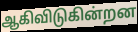
ஆகிவிடுகின்றன